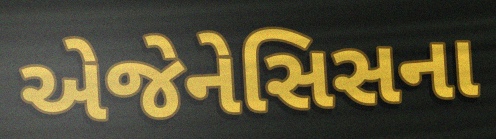
એજેનેસિસના